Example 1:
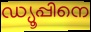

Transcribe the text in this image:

ഡ്യൂപ്പിനെ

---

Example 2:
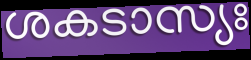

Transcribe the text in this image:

ശകടാസ്യഃ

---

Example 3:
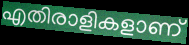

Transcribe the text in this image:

എതിരാളികളാണ്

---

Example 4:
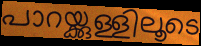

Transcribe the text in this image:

പാറയ്ക്കുള്ളിലൂടെ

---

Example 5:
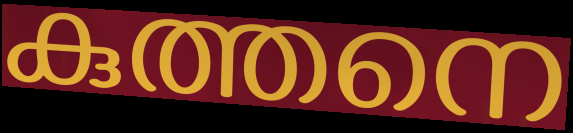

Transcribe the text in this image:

കുത്തനെ